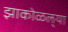
झाकोळल्या